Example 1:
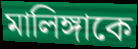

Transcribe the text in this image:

মালিঙ্গাকে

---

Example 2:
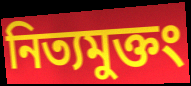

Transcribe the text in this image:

নিত্যমুক্তং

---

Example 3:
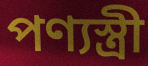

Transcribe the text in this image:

পণ্যস্ত্রী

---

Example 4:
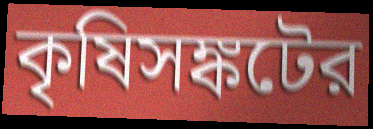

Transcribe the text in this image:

কৃষিসঙ্কটের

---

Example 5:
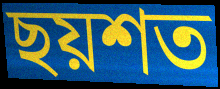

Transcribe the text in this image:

ছয়শত